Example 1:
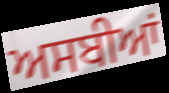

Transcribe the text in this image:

ਅਸਬੀਆਂ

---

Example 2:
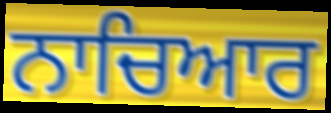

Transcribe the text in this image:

ਨਾਚਿਆਰ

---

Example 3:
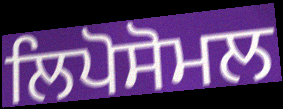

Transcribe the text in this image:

ਲਿਪੋਸੋਮਲ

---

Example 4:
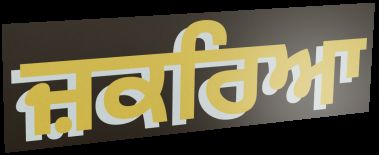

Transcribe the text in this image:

ਜ਼ਕਰਿਆ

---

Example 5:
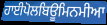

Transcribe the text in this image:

ਹਾਈਪੋਲਬਿਊਮਿਨਮੀਆ